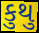
કુથુ